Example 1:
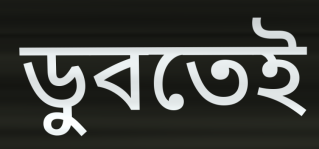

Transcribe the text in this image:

ডুবতেই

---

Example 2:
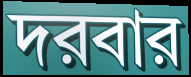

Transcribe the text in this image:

দরবার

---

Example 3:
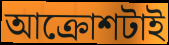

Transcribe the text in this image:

আক্রোশটাই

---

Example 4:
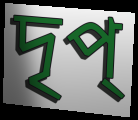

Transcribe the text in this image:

দৃপ্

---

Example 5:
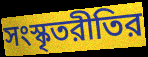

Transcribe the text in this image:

সংস্কৃতরীতির